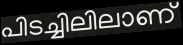
പിടച്ചിലിലാണ്